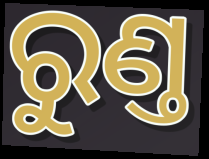
ରୁଣ୍ତ